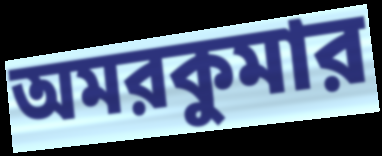
অমরকুমার